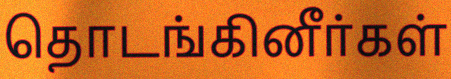
தொடங்கினீர்கள்